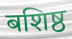
बशिष्ठ